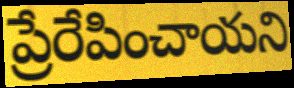
ప్రేరేపించాయని